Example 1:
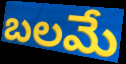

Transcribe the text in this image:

బలమే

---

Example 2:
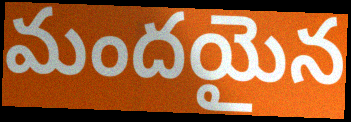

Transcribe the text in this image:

మందయైన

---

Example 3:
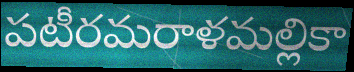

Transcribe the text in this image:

పటీరమరాళమల్లికా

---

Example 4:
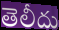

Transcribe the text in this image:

తెలీదు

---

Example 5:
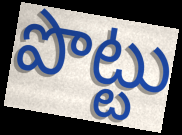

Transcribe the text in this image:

పొట్టు